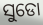
ସୁଡୋ